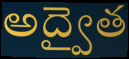
అద్వైత